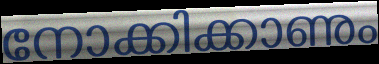
നോക്കിക്കാണും